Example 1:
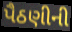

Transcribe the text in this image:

પૈઠણીની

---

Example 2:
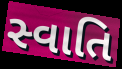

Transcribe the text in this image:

સ્વાતિ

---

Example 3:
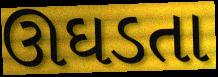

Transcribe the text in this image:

ઊઘડતા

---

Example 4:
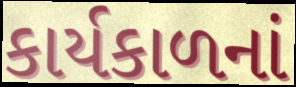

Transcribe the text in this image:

કાર્યકાળનાં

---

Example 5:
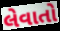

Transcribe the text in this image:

લેવાતો